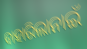
ବାହାରିଲାନାଇଁ